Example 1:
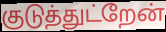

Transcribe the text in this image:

குடுத்துட்றேன்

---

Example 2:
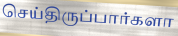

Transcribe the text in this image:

செய்திருப்பார்களா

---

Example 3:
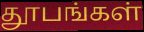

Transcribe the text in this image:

தூபங்கள்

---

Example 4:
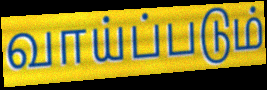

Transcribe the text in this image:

வாய்ப்படும்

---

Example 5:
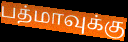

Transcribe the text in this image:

பத்மாவுக்கு